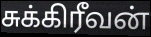
சுக்கிரீவன்